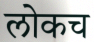
लोकच